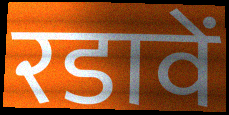
रडावें